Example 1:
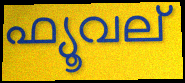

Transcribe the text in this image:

ഫ്യൂവല്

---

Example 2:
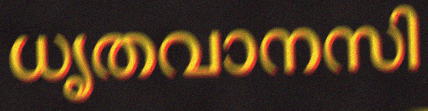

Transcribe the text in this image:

ധൃതവാനസി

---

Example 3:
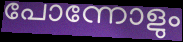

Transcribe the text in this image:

പോന്നോളും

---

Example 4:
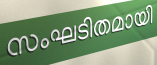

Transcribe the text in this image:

സംഘടിതമായി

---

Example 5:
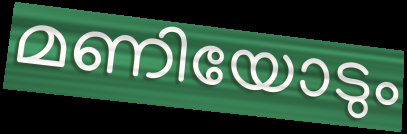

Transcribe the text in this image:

മണിയോടും